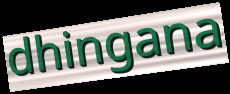
dhingana